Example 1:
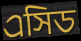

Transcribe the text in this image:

এসিড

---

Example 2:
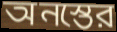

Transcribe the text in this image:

অনস্তের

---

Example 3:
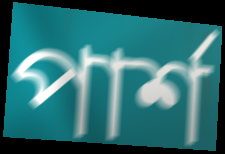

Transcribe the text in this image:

পার্শ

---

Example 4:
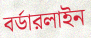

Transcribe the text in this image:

বর্ডারলাইন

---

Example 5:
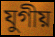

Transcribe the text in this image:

যুগীয়